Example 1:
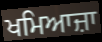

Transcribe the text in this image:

ਖਮਿਆਜ਼ਾ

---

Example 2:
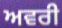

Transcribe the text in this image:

ਅਵਰੀ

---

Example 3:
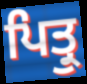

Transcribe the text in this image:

ਪਿਤ੍ਰੁ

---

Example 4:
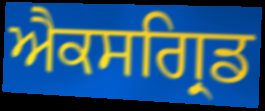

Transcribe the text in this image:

ਐਕਸਗ੍ਰਿਡ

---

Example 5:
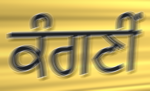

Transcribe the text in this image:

ਕੰਗਣੀਂ